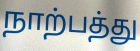
நாற்பத்து